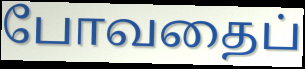
போவதைப்